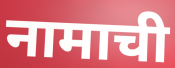
नामाची